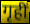
गृहीं